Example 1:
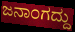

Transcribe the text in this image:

ಜನಾಂಗದ್ದು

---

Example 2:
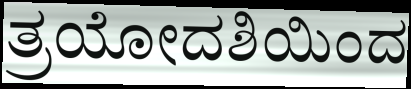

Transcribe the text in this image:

ತ್ರಯೋದಶಿಯಿಂದ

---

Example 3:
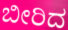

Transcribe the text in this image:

ಬೀರಿದ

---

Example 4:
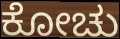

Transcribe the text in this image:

ಕೋಚು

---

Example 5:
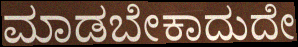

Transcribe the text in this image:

ಮಾಡಬೇಕಾದುದೇ